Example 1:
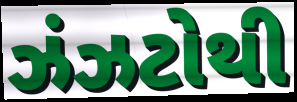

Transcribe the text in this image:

ઝંઝટોથી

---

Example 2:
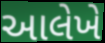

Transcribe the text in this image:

આલેખે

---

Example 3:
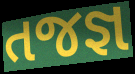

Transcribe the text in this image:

તજજ્ઞ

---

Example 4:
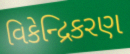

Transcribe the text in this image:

વિકેન્દ્રિકરણ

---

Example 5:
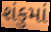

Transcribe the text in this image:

શંકુમાં